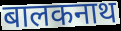
बालकनाथ